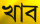
খাব